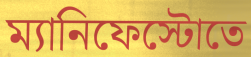
ম্যানিফেস্টোতে